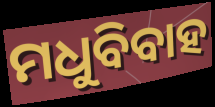
ମଧୁବିବାହ